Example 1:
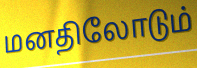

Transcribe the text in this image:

மனதிலோடும்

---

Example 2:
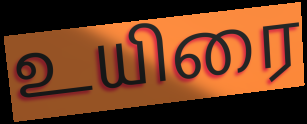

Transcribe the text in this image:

உயிரை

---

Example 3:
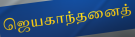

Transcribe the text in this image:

ஜெயகாந்தனைத்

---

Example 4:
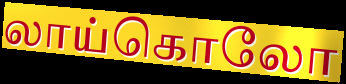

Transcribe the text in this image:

லாய்கொலோ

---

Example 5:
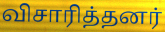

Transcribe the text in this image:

விசாரித்தனர்